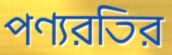
পণ্যরতির